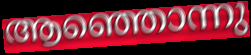
ആഞ്ഞൊന്നു